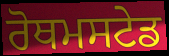
ਰੋਥਮਸਟੇਡ